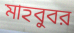
মাহবুবর